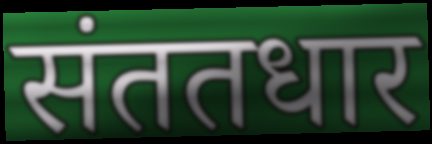
संततधार